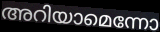
അറിയാമെന്നോ